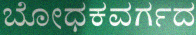
ಬೋಧಕವರ್ಗದ